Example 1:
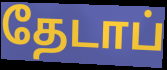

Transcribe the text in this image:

தேடாப்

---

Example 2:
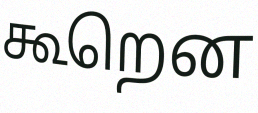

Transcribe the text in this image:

கூறென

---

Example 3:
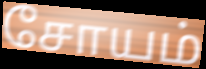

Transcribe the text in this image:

சோயம்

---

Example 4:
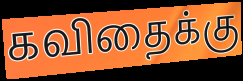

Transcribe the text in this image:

கவிதைக்கு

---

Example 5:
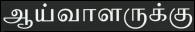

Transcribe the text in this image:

ஆய்வாளருக்கு